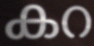
കറ